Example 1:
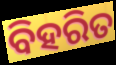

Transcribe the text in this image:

ବିହରିତ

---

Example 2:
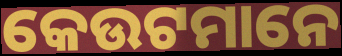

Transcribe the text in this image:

କେଉଟମାନେ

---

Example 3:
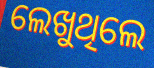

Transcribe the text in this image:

ଲେଖୁଥିଲେ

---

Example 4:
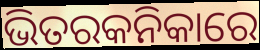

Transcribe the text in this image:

ଭିତରକନିକାରେ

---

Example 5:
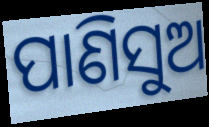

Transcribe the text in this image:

ପାଣିସୁଅ